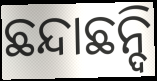
ଛନ୍ଦାଛନ୍ଦି